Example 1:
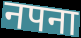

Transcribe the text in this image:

नपना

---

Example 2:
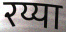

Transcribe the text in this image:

रय्या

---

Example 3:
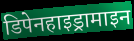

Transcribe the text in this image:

डिपेनहाइड्रामाइन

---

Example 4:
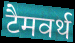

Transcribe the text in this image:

टैमवर्थ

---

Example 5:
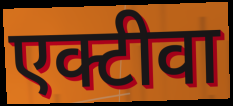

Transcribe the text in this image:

एक्टीवा